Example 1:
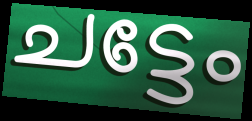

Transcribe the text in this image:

ചട്ടേം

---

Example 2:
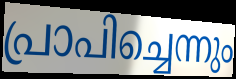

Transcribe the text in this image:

പ്രാപിച്ചെന്നും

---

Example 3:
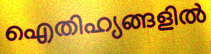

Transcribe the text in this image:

ഐതിഹ്യങ്ങളിൽ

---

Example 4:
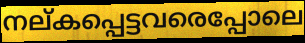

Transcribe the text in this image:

നല്കപ്പെട്ടവരെപ്പോലെ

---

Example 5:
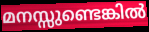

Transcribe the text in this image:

മനസ്സുണ്ടെങ്കിൽ